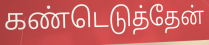
கண்டெடுத்தேன்